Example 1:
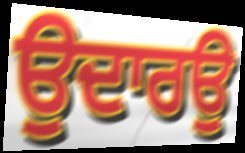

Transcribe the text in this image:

ਉਦਾਰਉ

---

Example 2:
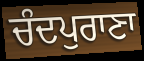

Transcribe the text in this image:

ਚੰਦਪੁਰਾਣਾ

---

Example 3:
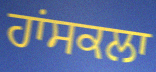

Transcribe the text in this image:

ਹਾਂਸਕਲਾ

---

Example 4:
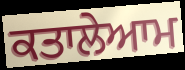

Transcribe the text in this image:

ਕਤਾਲੇਆਮ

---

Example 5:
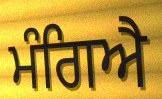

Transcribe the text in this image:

ਮੰਗਿਐ